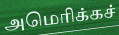
அமெரிக்கச்